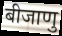
बीजाणु